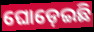
ଘୋଡ଼େଇଛି